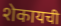
शेकायची